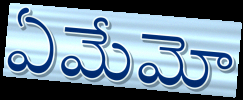
ఏమేమో